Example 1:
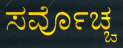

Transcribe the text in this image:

ಸರ್ವೊಚ್ಚ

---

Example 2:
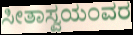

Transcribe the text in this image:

ಸೀತಾಸ್ವಯಂವರ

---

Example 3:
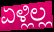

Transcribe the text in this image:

ಏಳ್ಲಿಲ್ಲ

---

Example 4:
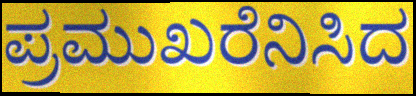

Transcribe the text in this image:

ಪ್ರಮುಖರೆನಿಸಿದ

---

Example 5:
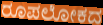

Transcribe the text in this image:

ರೂಪಲೋಕದ